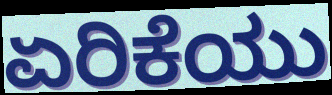
ಏರಿಕೆಯು